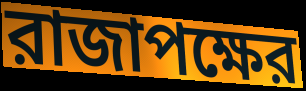
রাজাপক্ষের